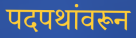
पदपथांवरून